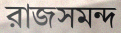
রাজসমন্দ